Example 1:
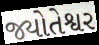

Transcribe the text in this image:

જ્યોતેશ્વર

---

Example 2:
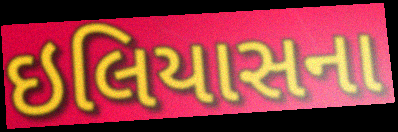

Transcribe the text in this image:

ઇલિયાસના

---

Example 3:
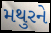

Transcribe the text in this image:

મથુરને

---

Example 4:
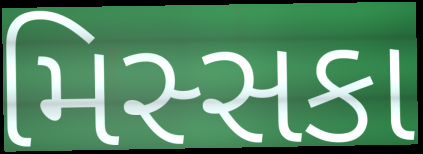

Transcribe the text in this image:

મિસ્સકા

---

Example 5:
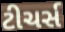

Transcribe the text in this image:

ટીચર્સ